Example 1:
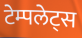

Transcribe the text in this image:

टेम्पलेट्स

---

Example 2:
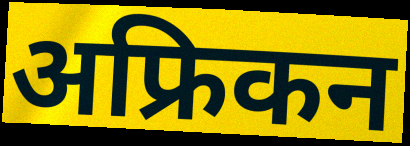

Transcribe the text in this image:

अफ्रिकन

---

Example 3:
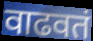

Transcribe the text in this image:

वाढवतं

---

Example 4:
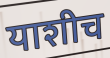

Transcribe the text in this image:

याशीच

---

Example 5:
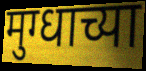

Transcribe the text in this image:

मुग्धाच्या